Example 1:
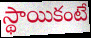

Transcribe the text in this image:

స్థాయికంటే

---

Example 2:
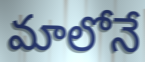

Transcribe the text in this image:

మాలోనే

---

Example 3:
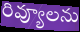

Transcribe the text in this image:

రివ్యూలను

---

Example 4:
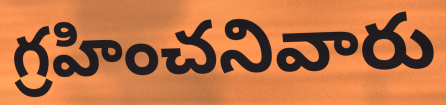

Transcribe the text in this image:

గ్రహించనివారు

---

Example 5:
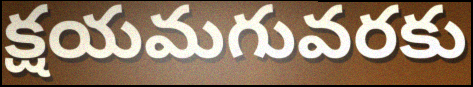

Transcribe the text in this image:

క్షయమగువరకు